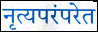
नृत्यपरंपरेत